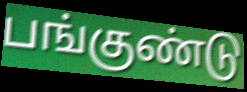
பங்குண்டு